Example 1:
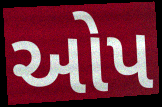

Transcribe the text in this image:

ઓપ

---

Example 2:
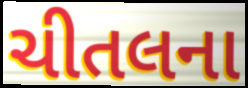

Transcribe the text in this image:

ચીતલના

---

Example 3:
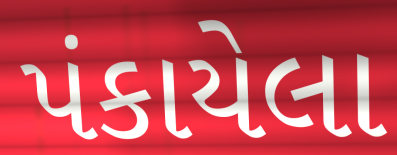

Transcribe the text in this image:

પંકાયેલા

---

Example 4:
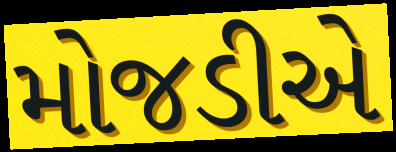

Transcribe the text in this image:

મોજડીએ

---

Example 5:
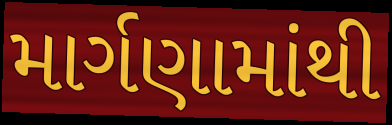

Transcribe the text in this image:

માર્ગણામાંથી